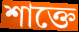
শাক্তে